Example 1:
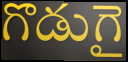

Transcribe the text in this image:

గొడుగై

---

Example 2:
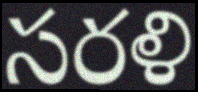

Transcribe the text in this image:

సరళి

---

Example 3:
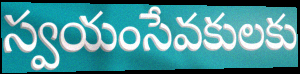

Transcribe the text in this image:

స్వయంసేవకులకు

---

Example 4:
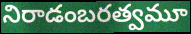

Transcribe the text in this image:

నిరాడంబరత్వమూ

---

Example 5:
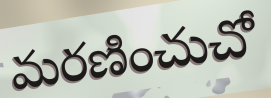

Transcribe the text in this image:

మరణించుచో